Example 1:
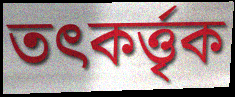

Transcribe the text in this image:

তৎকর্ত্তৃক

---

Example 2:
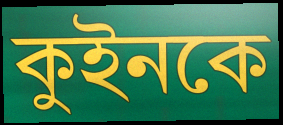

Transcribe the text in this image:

কুইনকে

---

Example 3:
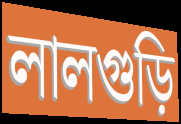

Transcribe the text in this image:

লালগুড়ি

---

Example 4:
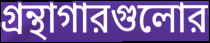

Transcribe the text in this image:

গ্রন্থাগারগুলোর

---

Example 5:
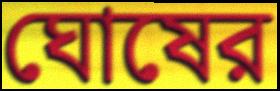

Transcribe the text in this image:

ঘোষের